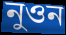
নুওন